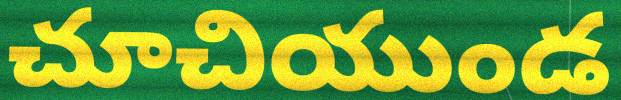
చూచియుండ